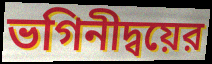
ভগিনীদ্বয়ের